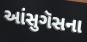
આંસુગૅસના